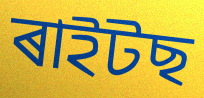
ৰাইটছ